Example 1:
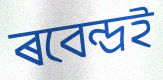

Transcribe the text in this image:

ৰবেন্দ্ৰই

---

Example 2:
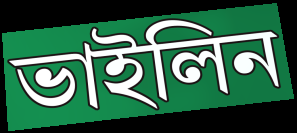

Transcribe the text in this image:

ভাইলিন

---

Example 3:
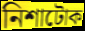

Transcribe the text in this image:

নিশাটোক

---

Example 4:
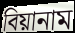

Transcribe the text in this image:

বিয়ানাম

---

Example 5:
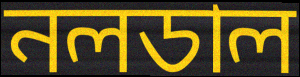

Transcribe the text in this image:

নলডাল